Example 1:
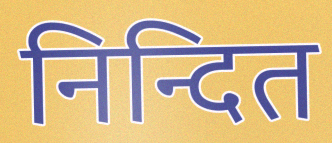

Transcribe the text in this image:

निन्दित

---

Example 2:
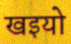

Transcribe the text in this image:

खइयो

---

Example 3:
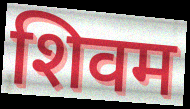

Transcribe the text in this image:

शिवम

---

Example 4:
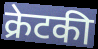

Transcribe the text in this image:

क्रेटकी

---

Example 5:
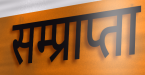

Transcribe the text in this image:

सम्प्राप्ता